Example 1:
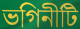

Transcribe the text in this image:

ভগিনীটি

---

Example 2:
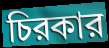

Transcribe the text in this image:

চিরকার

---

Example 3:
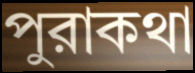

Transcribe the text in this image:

পুরাকথা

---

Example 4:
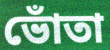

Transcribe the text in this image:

ভোঁতা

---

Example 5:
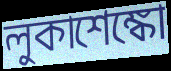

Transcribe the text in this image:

লুকাশেঙ্কো